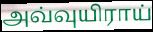
அவ்வுயிராய்